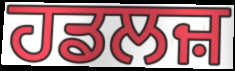
ਹਡਲਜ਼